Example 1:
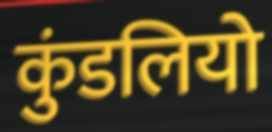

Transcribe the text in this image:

कुंडलियो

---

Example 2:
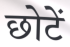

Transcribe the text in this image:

छोटें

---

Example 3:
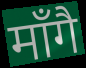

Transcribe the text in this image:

माँगै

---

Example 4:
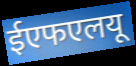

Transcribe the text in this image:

ईएफएलयू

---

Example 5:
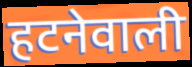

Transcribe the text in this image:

हटनेवाली